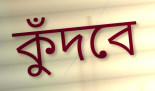
কুঁদবে